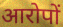
आरोपों